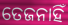
ତେଜନାହିଁ